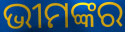
ଭୀମଙ୍କର